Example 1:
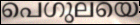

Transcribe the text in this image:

പെഗുലയെ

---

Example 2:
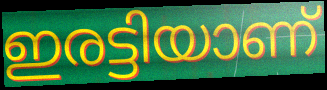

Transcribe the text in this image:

ഇരട്ടിയാണ്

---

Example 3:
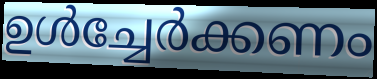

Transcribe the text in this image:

ഉൾച്ചേർക്കണം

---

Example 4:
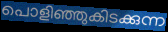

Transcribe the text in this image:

പൊളിഞ്ഞുകിടക്കുന്ന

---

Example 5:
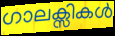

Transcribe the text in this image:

ഗാലക്സികൾ